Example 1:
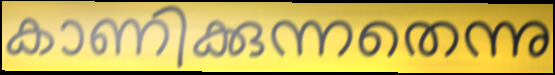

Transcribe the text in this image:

കാണിക്കുന്നതെന്നു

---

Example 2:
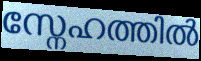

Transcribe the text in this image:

സ്നേഹത്തിൽ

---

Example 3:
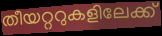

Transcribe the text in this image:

തീയറ്ററുകളിലേക്ക്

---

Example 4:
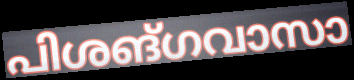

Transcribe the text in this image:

പിശങ്ഗവാസാ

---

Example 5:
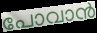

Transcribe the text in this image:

പോവാൻ